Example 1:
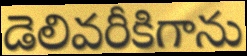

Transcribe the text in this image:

డెలివరీకిగాను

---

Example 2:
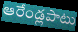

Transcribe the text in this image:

ఆరేండ్లపాటు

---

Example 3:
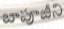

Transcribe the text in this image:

బాపూజీని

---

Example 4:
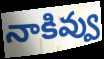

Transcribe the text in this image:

నాకివ్వు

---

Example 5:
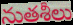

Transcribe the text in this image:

నుతశీలు